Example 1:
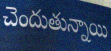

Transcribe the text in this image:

చెందుతున్నాయి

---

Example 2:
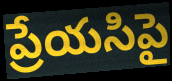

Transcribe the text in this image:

ప్రేయసిపై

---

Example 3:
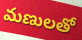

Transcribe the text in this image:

మణులతో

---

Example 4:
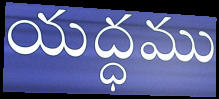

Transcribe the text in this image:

యద్ధము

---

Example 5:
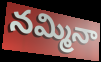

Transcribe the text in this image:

నమ్మినా